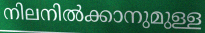
നിലനിൽക്കാനുമുള്ള